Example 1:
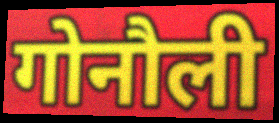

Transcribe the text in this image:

गोनौली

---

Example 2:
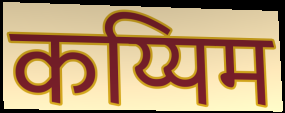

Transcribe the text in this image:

कय्यिम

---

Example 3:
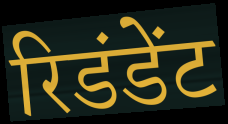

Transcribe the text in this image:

रिडंडेंट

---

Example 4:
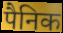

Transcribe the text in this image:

पैनिक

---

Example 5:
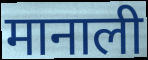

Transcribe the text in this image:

मानाली